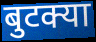
बुटक्या